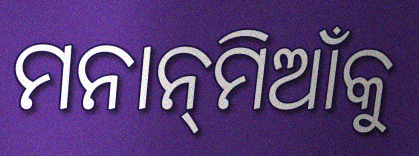
ମନାନ୍‌ମିଆଁକୁ